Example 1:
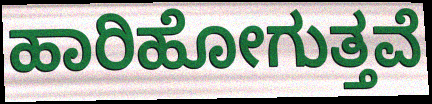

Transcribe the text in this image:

ಹಾರಿಹೋಗುತ್ತವೆ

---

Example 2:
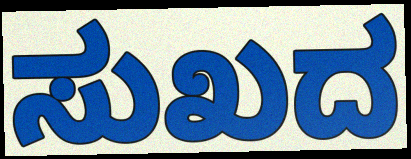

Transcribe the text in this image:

ಸುಖದ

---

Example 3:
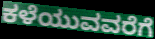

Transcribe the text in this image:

ಕಳೆಯುವವರೆಗೆ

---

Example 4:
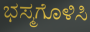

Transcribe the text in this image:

ಭಸ್ಮಗೊಳಿಸಿ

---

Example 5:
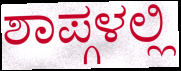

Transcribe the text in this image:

ಶಾಪ್ಗಳಲ್ಲಿ